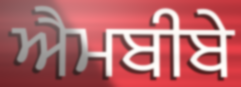
ਐਮਬੀਬੇ